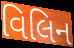
વિલિન